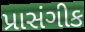
પ્રાસંગીક